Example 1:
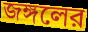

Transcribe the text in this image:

জঙ্গলের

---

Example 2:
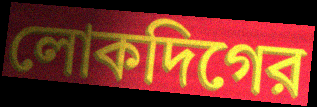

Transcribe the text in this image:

লোকদিগের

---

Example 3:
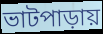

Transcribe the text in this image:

ভাটপাড়ায়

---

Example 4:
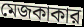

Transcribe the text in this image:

মেজকাকার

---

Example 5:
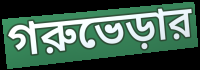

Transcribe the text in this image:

গরুভেড়ার